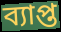
ব্যাপ্ত